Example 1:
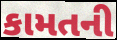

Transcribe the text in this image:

કામતની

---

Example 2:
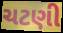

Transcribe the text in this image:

ચટણી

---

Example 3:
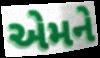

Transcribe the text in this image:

એમને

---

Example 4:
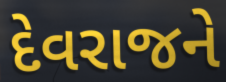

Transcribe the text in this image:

દેવરાજને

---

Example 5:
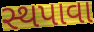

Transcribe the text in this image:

સ્થપાવા